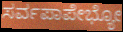
ಸರ್ವಪಾಪೇಭ್ಯೋ